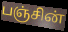
பஞ்சின்